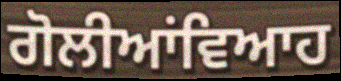
ਗੋਲੀਆਂਵਿਆਹ